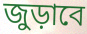
জুড়াবে